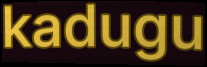
kadugu